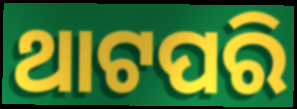
ଥାଟପରି